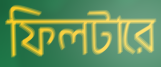
ফিলটারে